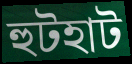
হুটহাট